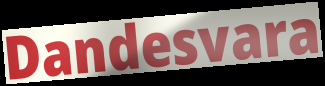
Dandesvara